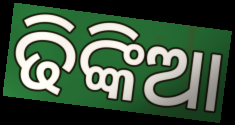
ଢିଙ୍କିଆ